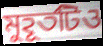
মুহূর্তটিও